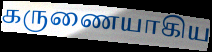
கருணையாகிய